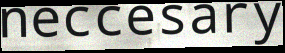
neccesary